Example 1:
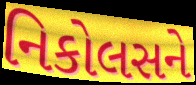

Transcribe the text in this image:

નિકોલસને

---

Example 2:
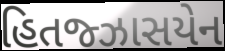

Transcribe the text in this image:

હિતજ્ઝાસયેન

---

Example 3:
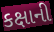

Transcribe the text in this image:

કક્ષાની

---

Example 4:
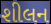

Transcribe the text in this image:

શીલન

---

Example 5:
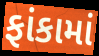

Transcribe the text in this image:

ફાંકામાં